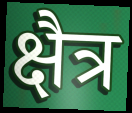
क्षैत्र